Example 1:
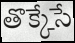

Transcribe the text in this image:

తొక్కేసే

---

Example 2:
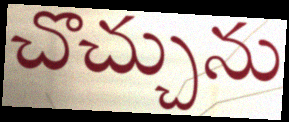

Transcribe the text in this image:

చొచ్చును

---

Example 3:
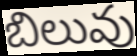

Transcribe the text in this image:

బిలువు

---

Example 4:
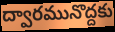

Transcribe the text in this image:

ద్వారమునొద్దకు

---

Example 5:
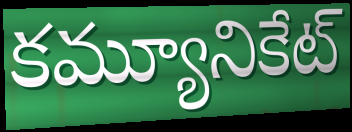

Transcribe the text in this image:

కమ్యూనికేట్